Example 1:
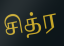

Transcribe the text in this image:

சித்ர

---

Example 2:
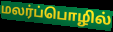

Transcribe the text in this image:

மலர்ப்பொழில்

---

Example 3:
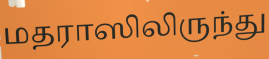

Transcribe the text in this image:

மதராஸிலிருந்து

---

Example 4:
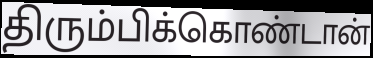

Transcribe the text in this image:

திரும்பிக்கொண்டான்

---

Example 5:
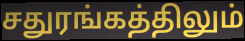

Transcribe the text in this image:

சதுரங்கத்திலும்